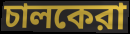
চালকেরা